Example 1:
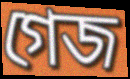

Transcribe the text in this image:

গেজ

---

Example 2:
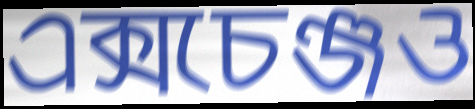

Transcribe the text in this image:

এক্সচেঞ্জও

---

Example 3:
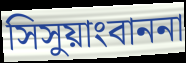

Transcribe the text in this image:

সিসুয়াংবাননা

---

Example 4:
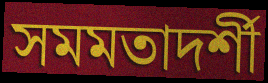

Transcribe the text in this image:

সমমতাদর্শী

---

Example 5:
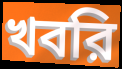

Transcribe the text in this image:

খবরি